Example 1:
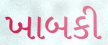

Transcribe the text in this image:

ખાબકી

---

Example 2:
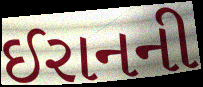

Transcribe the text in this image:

ઈરાનની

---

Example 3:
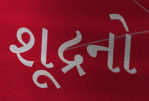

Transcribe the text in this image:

શૂદ્રનો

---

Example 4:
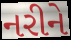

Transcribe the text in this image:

નરીને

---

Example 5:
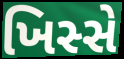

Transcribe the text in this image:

ખિસ્સે